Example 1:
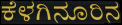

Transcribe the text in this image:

ಕೆಳಗಿನೂರಿನ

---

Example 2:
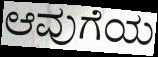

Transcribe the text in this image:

ಆವುಗೆಯ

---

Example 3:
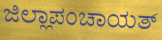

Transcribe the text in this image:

ಜಿಲ್ಲಾಪಂಚಾಯತ್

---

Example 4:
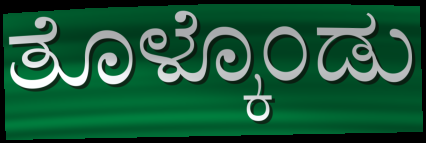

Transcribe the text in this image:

ತೊಳ್ಕೊಂಡು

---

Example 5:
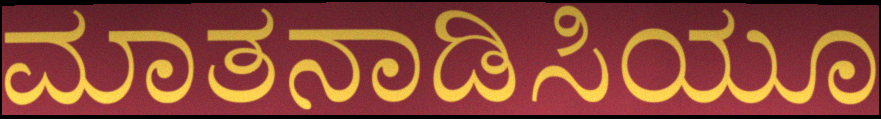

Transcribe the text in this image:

ಮಾತನಾಡಿಸಿಯೂ